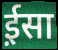
ई़सा